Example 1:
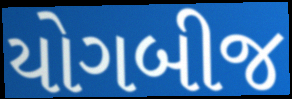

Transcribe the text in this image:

યોગબીજ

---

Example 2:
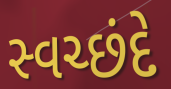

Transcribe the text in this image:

સ્વચ્છંદે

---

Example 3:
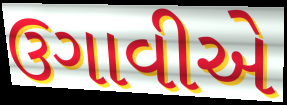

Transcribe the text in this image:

ઉગાવીએ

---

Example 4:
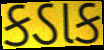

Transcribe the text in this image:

કડાક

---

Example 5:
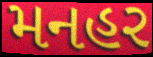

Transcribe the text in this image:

મનહર